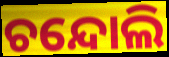
ଚନ୍ଦୋଲି